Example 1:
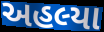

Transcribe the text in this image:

અહલ્યા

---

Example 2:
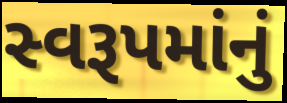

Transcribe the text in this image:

સ્વરૂપમાંનું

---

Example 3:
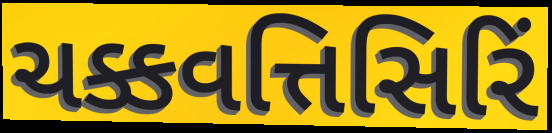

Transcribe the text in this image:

ચક્કવત્તિસિરિં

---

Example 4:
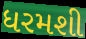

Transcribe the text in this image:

ધરમશી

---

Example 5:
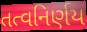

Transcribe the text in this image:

તત્વનિર્ણય